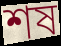
শষ